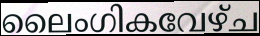
ലൈംഗികവേഴ്ച